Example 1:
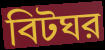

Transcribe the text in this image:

বিটঘর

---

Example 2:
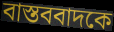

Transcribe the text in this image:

বাস্তববাদকে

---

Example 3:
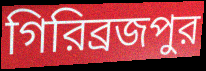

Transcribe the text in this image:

গিরিব্রজপুর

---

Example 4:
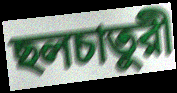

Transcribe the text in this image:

ছলচাতুরী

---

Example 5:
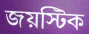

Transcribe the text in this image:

জয়স্টিক